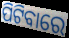
ପିଟିବାରେ